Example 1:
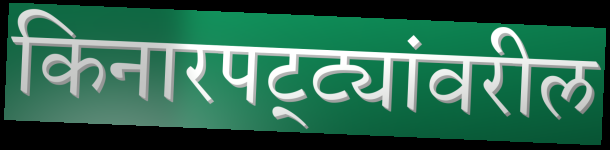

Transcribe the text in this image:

किनारपट्ट्यांवरील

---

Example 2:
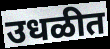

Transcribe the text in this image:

उधळीत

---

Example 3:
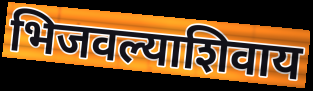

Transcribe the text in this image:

भिजवल्याशिवाय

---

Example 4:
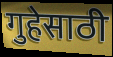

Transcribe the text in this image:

गुहेसाठी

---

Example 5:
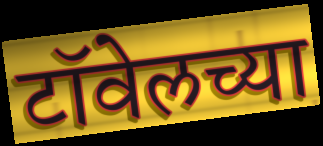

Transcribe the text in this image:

टॉवेलच्या